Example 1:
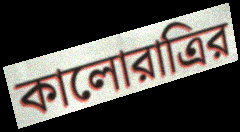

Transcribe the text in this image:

কালোরাত্রির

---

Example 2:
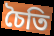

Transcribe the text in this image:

চৈতি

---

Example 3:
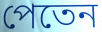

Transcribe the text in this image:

পেতেন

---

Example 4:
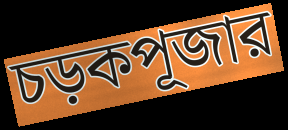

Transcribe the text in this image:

চড়কপূজার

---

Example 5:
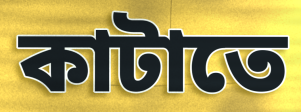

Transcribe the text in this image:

কাটাতে